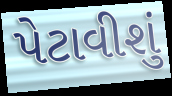
પેટાવીશું